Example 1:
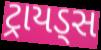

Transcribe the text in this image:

ટ્રાયડ્સ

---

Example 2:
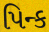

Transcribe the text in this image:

પિન્ક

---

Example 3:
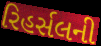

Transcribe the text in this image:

રિહર્સલની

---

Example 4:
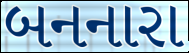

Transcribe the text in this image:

બનનારા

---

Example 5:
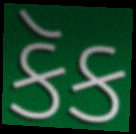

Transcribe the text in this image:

કૅક